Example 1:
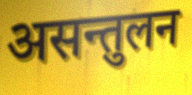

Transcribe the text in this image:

असन्तुलन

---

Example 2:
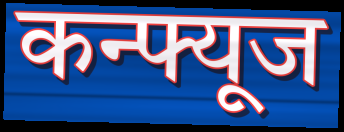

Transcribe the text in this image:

कन्फ्यूज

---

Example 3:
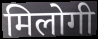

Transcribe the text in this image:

मिलोगी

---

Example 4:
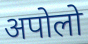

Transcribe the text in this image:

अपोलो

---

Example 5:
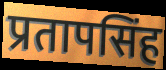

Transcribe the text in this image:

प्रतापसिंह